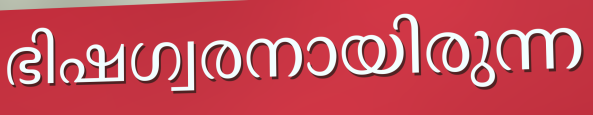
ഭിഷഗ്വരനായിരുന്ന